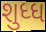
શુધ્ધ